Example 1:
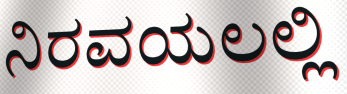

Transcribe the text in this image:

ನಿರವಯಲಲ್ಲಿ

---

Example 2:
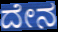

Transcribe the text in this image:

ದೇನ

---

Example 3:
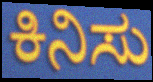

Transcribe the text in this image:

ಕಿನಿಸು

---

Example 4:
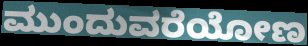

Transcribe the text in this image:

ಮುಂದುವರೆಯೋಣ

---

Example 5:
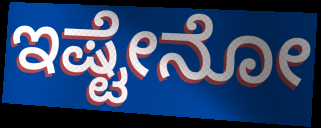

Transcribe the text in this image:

ಇಷ್ಟೇನೋ